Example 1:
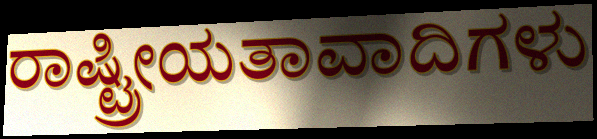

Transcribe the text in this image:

ರಾಷ್ಟ್ರೀಯತಾವಾದಿಗಳು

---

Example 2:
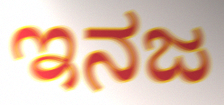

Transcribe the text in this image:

ಇನಜ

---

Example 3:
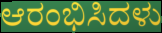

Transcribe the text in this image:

ಆರಂಭಿಸಿದಳು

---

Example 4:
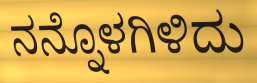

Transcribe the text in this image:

ನನ್ನೊಳಗಿಳಿದು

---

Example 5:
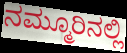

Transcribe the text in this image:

ನಮ್ಮೂರಿನಲ್ಲಿ